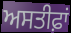
ਅਸਤੀਫ਼ਾਂ